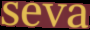
seva